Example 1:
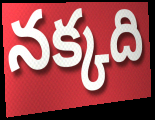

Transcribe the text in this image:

నక్కది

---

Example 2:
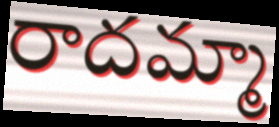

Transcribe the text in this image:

రాదమ్మా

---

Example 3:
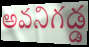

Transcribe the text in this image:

అవనిగడ్డ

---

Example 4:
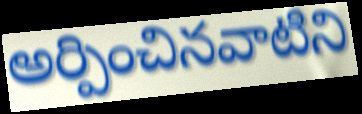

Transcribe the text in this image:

అర్పించినవాటిని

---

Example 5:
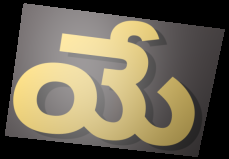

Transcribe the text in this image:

యే